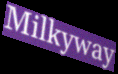
Milkyway